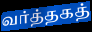
வர்த்தகத்